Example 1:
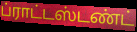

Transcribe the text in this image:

ப்ராட்டஸ்டண்ட்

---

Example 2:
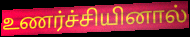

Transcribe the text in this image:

உணர்ச்சியினால்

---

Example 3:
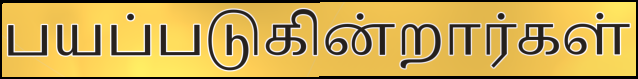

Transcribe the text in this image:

பயப்படுகின்றார்கள்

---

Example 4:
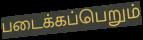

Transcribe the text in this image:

படைக்கப்பெறும்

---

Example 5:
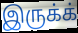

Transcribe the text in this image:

இருக்க்